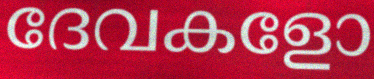
ദേവകളോ